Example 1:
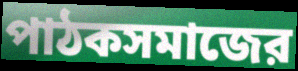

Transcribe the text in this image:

পাঠকসমাজের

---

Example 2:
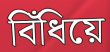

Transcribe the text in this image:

বিঁধিয়ে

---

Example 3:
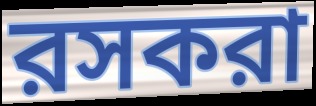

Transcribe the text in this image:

রসকরা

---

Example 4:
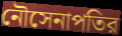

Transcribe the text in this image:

নৌসেনাপতির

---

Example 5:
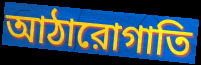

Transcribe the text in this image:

আঠারোগাতি